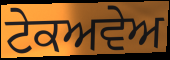
ਟੇਕਅਵੇਅ